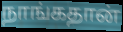
நாங்கதான்